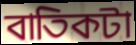
বাতিকটা